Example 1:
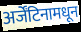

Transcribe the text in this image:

अर्जेंटिनामधून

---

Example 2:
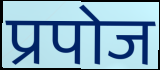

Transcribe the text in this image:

प्रपोज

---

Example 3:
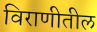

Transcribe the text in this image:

विराणीतील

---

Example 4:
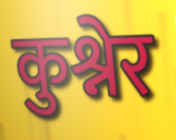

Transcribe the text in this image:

कुश्नेर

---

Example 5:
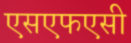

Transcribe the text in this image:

एसएफएसी